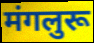
मंगलुरू